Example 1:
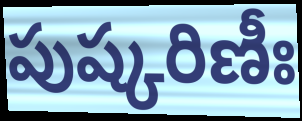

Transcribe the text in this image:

పుష్కరిణీః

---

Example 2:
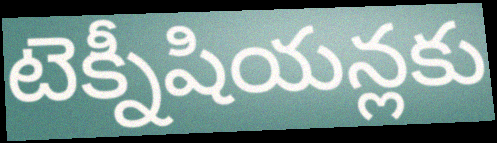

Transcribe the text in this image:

టెక్నీషియన్లకు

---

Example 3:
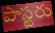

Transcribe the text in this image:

పాస్టరు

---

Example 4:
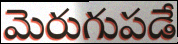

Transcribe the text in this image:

మెరుగుపడే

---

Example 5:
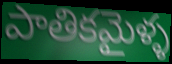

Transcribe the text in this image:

పాతికమైళ్ళ